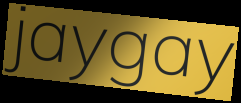
jaygay